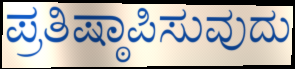
ಪ್ರತಿಷ್ಠಾಪಿಸುವುದು